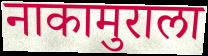
नाकामुराला